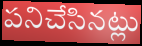
పనిచేసినట్లు